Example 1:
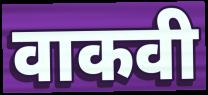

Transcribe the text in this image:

वाकवी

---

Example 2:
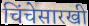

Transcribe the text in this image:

चिंचेसारखी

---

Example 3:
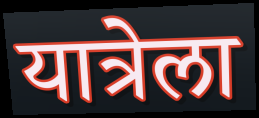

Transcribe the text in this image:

यात्रेला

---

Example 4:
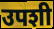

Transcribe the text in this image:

उपशी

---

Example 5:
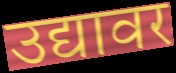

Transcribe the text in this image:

उद्यावर